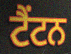
ਟੈਂਟਨ